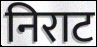
निराट